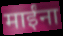
माईंना